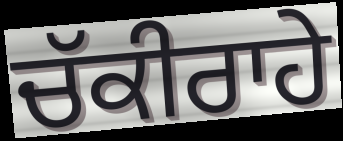
ਚੱਕੀਰਾਹੇ